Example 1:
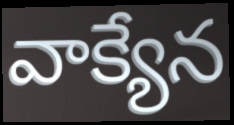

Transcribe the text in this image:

వాక్యేన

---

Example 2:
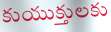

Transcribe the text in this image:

కుయుక్తులకు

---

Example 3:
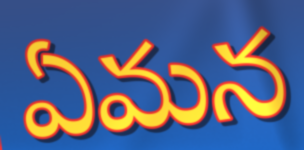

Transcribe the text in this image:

ఏమన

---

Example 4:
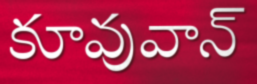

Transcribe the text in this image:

కూవువాన్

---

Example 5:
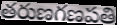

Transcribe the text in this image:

తరుణగణపతి